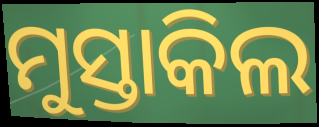
ମୁସ୍ତାକିଲ